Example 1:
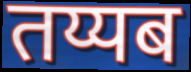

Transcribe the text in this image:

तय्यब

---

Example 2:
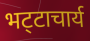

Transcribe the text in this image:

भट्‍टाचार्य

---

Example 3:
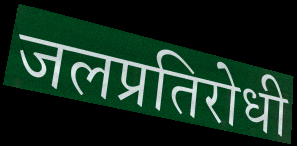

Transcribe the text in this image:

जलप्रतिरोधी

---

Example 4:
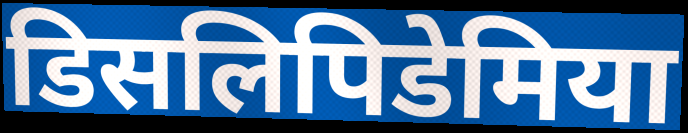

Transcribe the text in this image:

डिसलिपिडेमिया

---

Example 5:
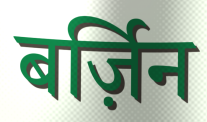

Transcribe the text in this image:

बर्ज़िन